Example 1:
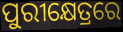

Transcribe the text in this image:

ପୁରୀକ୍ଷେତ୍ରରେ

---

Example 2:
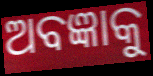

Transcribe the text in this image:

ଅବଜ୍ଞାକୁ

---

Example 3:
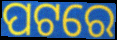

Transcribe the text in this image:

ପଟରେ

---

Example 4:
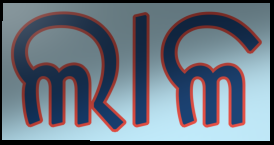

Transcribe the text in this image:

ଲାଳ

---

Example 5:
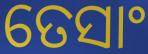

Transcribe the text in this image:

ତେସାଂ